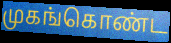
முகங்கொண்ட